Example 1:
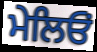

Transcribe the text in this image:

ਮੇਲਿਓਂ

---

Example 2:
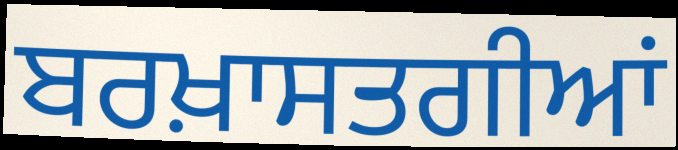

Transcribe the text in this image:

ਬਰਖ਼ਾਸਤਗੀਆਂ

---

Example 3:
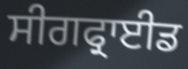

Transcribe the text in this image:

ਸੀਗਫ੍ਰਾਈਡ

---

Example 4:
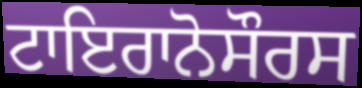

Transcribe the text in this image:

ਟਾਇਰਾਨੋਸੌਰਸ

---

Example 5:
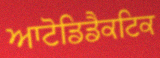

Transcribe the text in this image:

ਆਟੋਡਿਡੈਕਟਿਕ